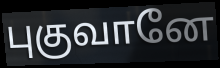
புகுவானே